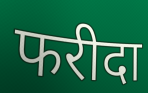
फरीदा